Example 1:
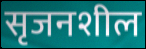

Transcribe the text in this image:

सृजनशील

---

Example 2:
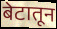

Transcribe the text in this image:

बेटातून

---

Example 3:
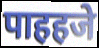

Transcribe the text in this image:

पाहहजे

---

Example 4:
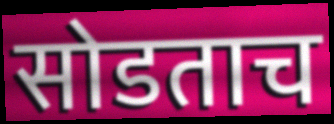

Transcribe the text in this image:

सोडताच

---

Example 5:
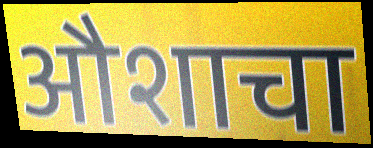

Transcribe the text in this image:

औशाचा